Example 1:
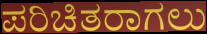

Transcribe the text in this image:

ಪರಿಚಿತರಾಗಲು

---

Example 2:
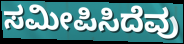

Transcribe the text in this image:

ಸಮೀಪಿಸಿದೆವು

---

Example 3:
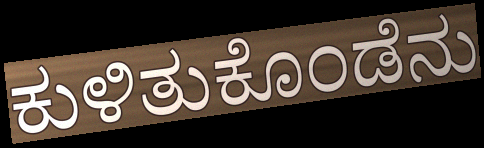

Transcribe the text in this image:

ಕುಳಿತುಕೊಂಡೆನು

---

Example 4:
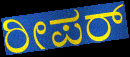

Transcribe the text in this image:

ರೀಪರ್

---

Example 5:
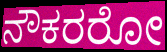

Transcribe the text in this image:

ನೌಕರರೋ